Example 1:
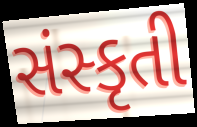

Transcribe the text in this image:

સંસ્કૃતી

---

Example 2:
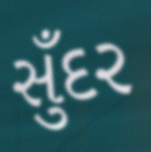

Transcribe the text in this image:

સુઁદર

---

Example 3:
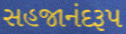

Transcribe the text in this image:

સહજાનંદરૂપ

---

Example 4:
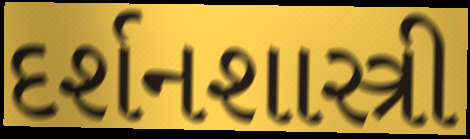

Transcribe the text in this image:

દર્શનશાસ્ત્રી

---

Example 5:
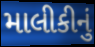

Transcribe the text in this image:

માલીકીનું